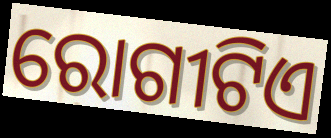
ରୋଗୀଟିଏ